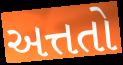
અત્તતો